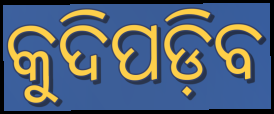
କୁଦିପଡ଼ିବ